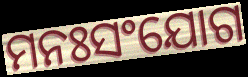
ମନଃସଂଯୋଗ